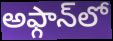
అఫ్గాన్‌లో